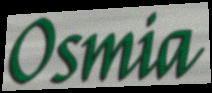
Osmia